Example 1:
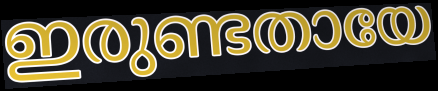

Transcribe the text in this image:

ഇരുണ്ടതായേ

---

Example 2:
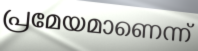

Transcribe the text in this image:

പ്രമേയമാണെന്ന്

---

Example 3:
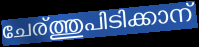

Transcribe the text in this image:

ചേര്ത്തുപിടിക്കാന്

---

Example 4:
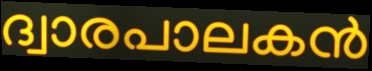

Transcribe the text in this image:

ദ്വാരപാലകൻ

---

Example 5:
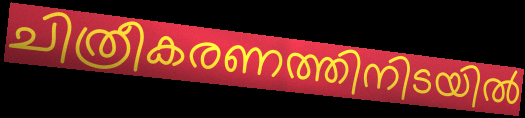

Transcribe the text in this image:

ചിത്രീകരണത്തിനിടയിൽ